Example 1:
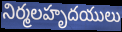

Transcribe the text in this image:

నిర్మలహృదయులు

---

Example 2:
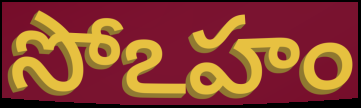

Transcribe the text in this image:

సోఽహం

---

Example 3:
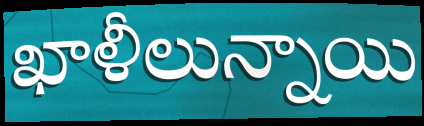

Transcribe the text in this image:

ఖాళీలున్నాయి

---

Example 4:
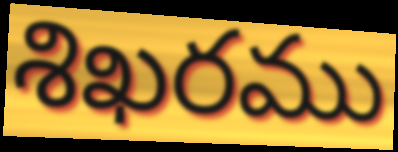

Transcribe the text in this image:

శిఖరము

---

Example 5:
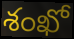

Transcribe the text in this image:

శంఖో